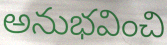
అనుభవించి